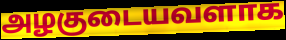
அழகுடையவளாக